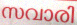
സവാരി